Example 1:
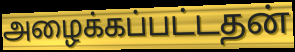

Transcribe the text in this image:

அழைக்கப்பட்டதன்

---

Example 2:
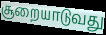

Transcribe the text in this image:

சூறையாடுவது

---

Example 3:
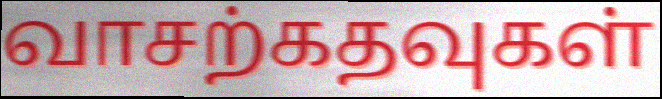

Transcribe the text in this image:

வாசற்கதவுகள்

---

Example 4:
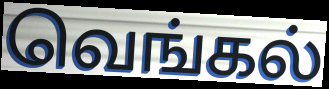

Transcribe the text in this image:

வெங்கல்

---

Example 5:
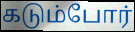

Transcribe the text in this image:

கடும்போர்